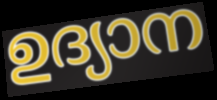
ഉദ്യാന